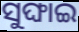
ସୁଙ୍ଘାଇ